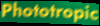
Phototropic